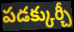
పడక్కుర్చీ